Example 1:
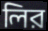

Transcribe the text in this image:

লির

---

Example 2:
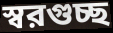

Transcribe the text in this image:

স্বরগুচ্ছ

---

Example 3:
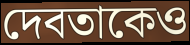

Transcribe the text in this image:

দেবতাকেও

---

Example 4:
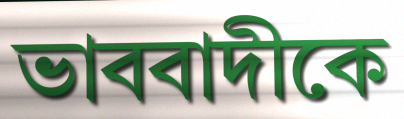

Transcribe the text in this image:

ভাববাদীকে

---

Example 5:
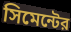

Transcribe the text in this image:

সিমেন্টের